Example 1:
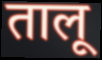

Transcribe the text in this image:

तालू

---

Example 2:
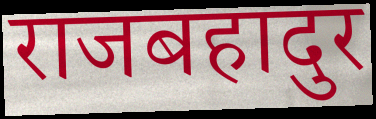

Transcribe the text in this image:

राजबहादुर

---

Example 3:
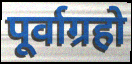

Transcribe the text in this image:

पूर्वाग्रहो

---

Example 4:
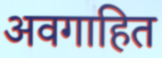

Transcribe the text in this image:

अवगाहित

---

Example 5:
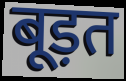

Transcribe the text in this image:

बूड़त